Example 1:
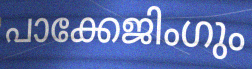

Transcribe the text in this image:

പാക്കേജിംഗും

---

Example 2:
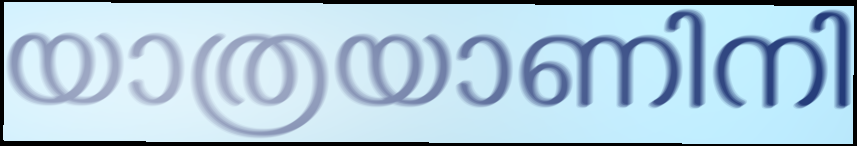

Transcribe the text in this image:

യാത്രയാണിനി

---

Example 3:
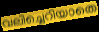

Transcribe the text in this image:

വലിച്ചെറിയാതെ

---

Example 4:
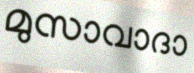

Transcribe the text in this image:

മുസാവാദാ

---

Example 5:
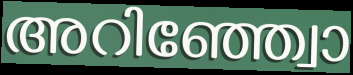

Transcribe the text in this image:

അറിഞ്ഞ്വോ